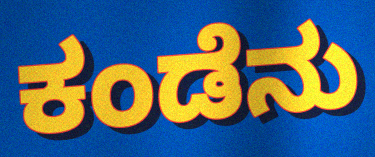
ಕಂಡೆನು